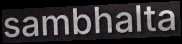
sambhalta